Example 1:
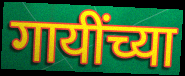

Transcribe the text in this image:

गायींच्या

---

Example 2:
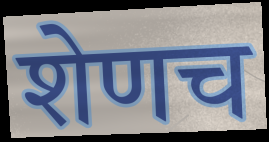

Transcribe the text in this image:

शेणच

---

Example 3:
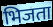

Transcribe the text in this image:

भिजता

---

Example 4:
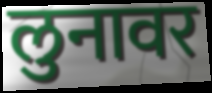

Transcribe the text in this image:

लुनावर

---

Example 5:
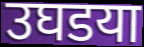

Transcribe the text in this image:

उघडया